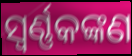
ସ୍ୱର୍ଣ୍ଣକଙ୍କଣ